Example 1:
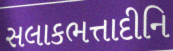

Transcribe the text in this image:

સલાકભત્તાદીનિ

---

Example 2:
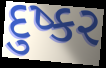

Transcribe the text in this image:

દુષ્કર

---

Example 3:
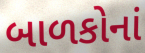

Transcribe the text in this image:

બાળકોનાં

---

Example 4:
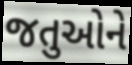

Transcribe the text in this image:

જતુઓને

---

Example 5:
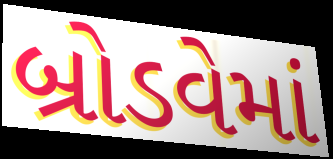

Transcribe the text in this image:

બ્રોડવેમાં